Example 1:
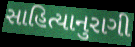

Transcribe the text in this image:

સાહિત્યાનુરાગી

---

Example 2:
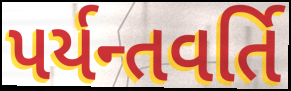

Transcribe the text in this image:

પર્યન્તવર્તિ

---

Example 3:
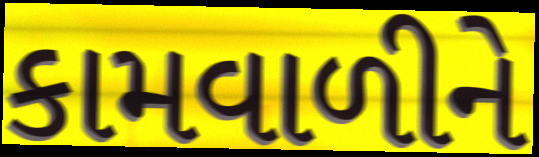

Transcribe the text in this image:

કામવાળીને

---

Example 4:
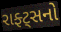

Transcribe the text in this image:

રાફ્ટ્સનો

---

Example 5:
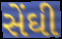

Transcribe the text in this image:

સેંઘી